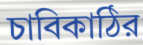
চাবিকাঠির